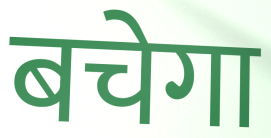
बचेगा